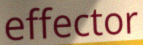
effector